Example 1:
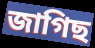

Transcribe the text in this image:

জাগিছ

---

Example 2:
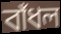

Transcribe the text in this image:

বাঁধল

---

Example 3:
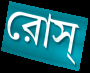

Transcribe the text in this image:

রোস্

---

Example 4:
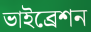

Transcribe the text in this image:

ভাইব্রেশন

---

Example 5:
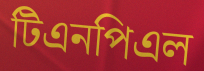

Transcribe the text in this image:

টিএনপিএল